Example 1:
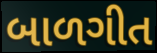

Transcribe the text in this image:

બાળગીત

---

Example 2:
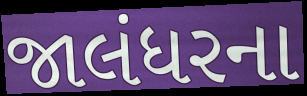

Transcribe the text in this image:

જાલંધરના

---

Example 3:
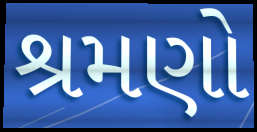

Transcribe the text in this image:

શ્રમણો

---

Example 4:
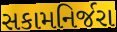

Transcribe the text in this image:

સકામનિર્જરા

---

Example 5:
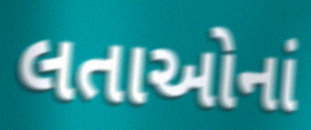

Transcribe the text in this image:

લતાઓનાં